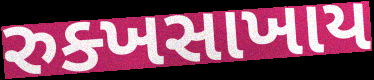
રુક્ખસાખાય